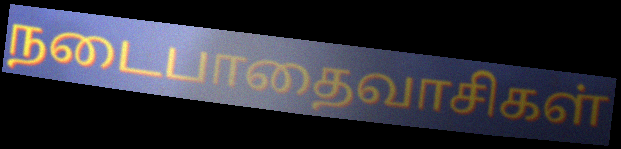
நடைபாதைவாசிகள்